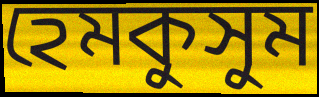
হেমকুসুম